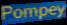
Pompey